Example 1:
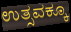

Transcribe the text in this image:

ಉತ್ಸವಕ್ಕೂ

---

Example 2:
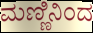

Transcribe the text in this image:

ಮಣ್ಣಿನಿಂದ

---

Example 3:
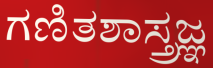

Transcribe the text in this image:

ಗಣಿತಶಾಸ್ತ್ರಜ್ಞ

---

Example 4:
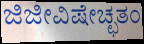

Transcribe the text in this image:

ಜಿಜೀವಿಷೇಚ್ಛತಂ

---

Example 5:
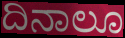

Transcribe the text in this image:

ದಿನಾಲೂ